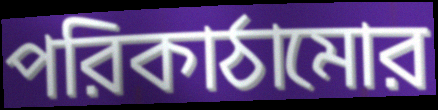
পরিকাঠামোর